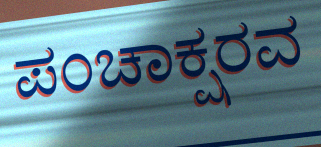
ಪಂಚಾಕ್ಷರವ